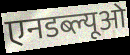
एनडब्ल्यूओ